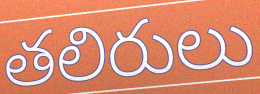
తలిరులు